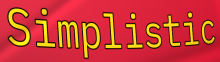
Simplistic